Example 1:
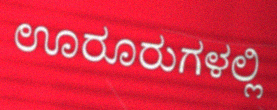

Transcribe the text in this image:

ಊರೂರುಗಳಲ್ಲಿ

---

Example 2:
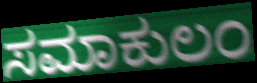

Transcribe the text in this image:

ಸಮಾಕುಲಂ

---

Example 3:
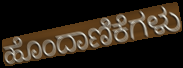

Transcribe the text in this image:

ಹೊಂದಾಣಿಕೆಗಳು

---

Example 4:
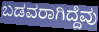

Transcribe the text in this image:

ಬಡವರಾಗಿದ್ದೆವು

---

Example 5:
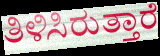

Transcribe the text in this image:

ತಿಳಿಸಿರುತ್ತಾರೆ